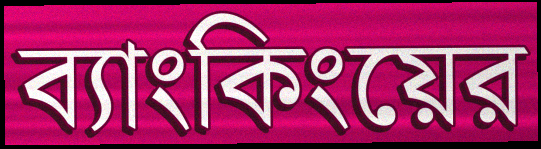
ব্যাংকিংয়ের